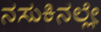
ನಸುಕಿನಲ್ಲೇ